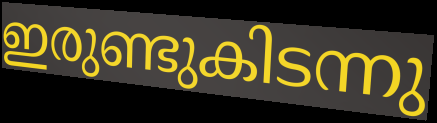
ഇരുണ്ടുകിടന്നു